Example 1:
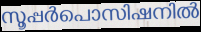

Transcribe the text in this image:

സൂപ്പർപൊസിഷനിൽ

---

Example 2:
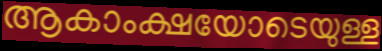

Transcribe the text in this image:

ആകാംക്ഷയോടെയുള്ള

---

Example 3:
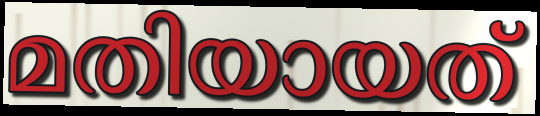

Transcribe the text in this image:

മതിയായത്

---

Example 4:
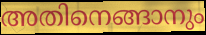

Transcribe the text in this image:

അതിനെങ്ങാനും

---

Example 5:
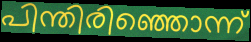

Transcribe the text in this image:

പിന്തിരിഞ്ഞൊന്ന്